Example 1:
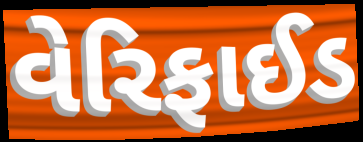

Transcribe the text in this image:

વેરિફાઈડ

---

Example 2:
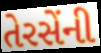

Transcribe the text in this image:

તેરસેંની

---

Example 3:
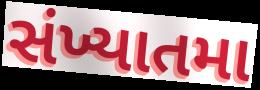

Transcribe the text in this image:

સંખ્યાતમા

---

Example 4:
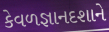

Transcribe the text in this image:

કેવળજ્ઞાનદશાને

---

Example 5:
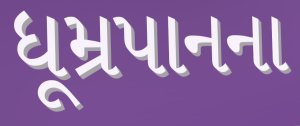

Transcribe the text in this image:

ધૂમ્રપાનના